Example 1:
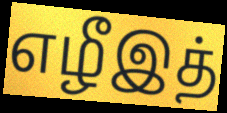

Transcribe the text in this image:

எழீஇத்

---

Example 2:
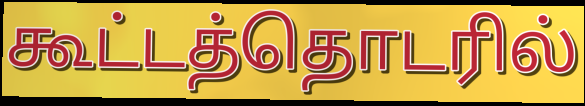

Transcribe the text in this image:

கூட்டத்தொடரில்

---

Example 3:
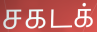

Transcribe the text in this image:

சகடக்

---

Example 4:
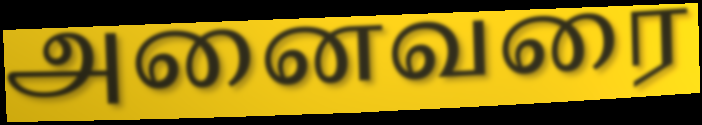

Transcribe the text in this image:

அனைவரை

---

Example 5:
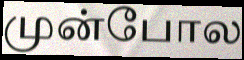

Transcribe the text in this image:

முன்போல